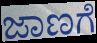
ಜಾಣಗೆ